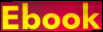
Ebook